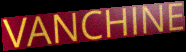
VANCHINE